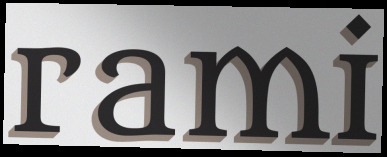
rami